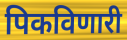
पिकविणारी